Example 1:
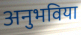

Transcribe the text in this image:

अनुभविया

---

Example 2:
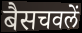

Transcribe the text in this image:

बैसचवलें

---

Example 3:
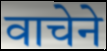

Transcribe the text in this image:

वाचेने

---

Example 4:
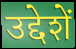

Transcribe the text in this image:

उद्देशें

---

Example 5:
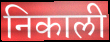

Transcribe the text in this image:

निकाली